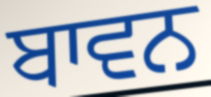
ਬਾਵਨ